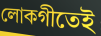
লোকগীতেই